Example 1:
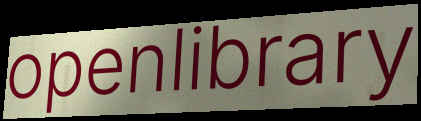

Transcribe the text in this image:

openlibrary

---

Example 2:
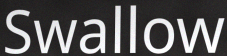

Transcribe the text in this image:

Swallow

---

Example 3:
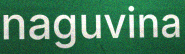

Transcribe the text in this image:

naguvina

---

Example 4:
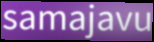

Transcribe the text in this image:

samajavu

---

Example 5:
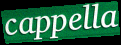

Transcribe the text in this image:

cappella